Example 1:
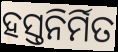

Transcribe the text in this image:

ହସ୍ତନିର୍ମିତ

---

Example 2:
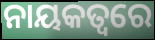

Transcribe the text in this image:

ନାୟକତ୍ବରେ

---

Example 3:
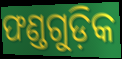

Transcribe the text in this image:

ଫଣ୍ଡଗୁଡ଼ିକ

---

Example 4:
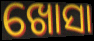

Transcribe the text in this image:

ଖୋସା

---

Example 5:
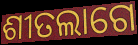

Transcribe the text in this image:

ଶୀତଲାଗେ